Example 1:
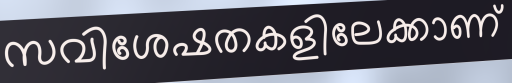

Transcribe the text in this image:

സവിശേഷതകളിലേക്കാണ്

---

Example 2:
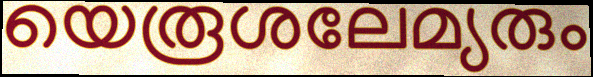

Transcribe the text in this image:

യെരൂശലേമ്യരും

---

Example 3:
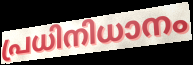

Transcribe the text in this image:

പ്രധിനിധാനം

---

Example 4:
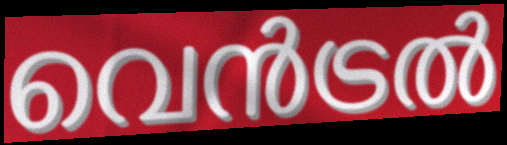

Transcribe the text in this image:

വെൻട്രൽ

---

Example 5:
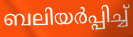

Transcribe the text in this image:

ബലിയർപ്പിച്ച്